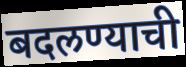
बदलण्याची